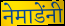
नेमाडेंनी